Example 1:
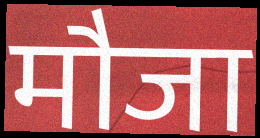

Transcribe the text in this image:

मौजा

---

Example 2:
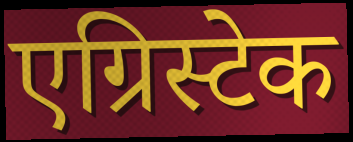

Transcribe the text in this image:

एग्रिस्टेक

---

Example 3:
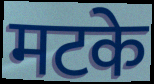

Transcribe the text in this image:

मटके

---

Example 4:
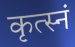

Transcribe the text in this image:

कृत्स्नं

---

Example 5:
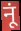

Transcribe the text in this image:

नूं